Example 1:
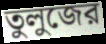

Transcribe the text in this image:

তুলুজের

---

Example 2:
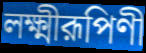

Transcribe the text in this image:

লক্ষ্মীরূপিণী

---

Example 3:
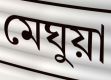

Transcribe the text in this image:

মেঘুয়া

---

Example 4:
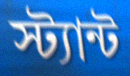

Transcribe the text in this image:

স্ট্যান্ট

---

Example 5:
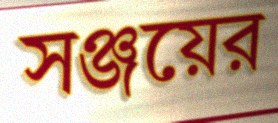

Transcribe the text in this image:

সঞ্জয়ের